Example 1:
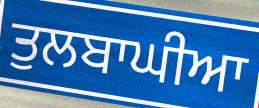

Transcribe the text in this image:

ਤੁਲਬਾਘੀਆ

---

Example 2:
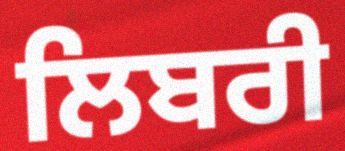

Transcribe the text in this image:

ਲਿਬਰੀ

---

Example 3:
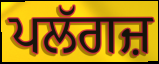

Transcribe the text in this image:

ਪਲੱਗਜ਼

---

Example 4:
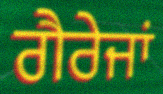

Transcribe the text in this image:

ਗੈਰੇਜਾਂ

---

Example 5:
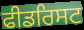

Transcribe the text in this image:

ਫੀਡਰਿਸਟ